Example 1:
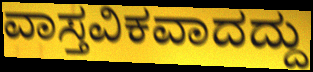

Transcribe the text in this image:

ವಾಸ್ತವಿಕವಾದದ್ದು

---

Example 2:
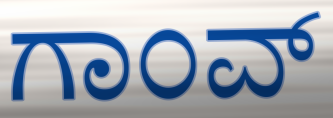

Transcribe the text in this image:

ಗಾಂವ್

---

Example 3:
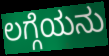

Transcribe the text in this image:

ಲಗ್ಗೆಯನು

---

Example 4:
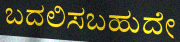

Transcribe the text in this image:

ಬದಲಿಸಬಹುದೇ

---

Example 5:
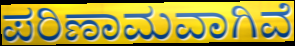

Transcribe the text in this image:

ಪರಿಣಾಮವಾಗಿವೆ